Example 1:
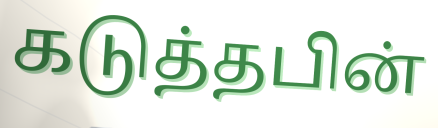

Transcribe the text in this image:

கடுத்தபின்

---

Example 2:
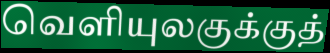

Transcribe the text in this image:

வெளியுலகுக்குத்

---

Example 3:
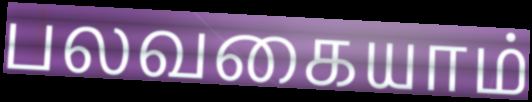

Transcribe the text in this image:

பலவகையாம்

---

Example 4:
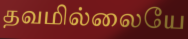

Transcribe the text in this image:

தவமில்லையே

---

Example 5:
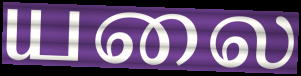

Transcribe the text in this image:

யலை